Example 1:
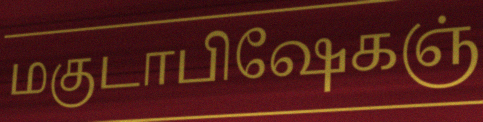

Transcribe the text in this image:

மகுடாபிஷேகஞ்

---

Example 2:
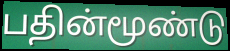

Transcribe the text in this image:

பதின்மூண்டு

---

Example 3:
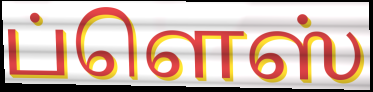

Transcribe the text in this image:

ப்ளெஸ்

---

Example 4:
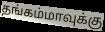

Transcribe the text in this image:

தங்கம்மாவுக்கு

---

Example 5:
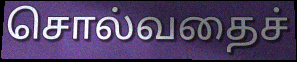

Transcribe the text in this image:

சொல்வதைச்